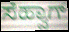
ಸೆಹ್ವಾಗ್